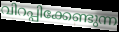
വിറപ്പിക്കേണ്ടുന്ന